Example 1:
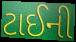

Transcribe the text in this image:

ટાઈની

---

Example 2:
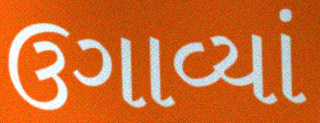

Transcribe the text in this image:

ઉગાવ્યાં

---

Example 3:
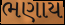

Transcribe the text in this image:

ભણાય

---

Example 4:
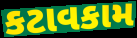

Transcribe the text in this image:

કટાવકામ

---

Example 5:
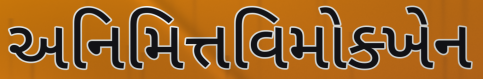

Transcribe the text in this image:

અનિમિત્તવિમોક્ખેન